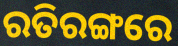
ରତିରଙ୍ଗରେ